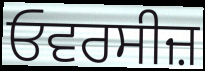
ਓਵਰਸੀਜ਼